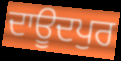
ਦਾਊਦਪੁਰ